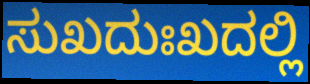
ಸುಖದುಃಖದಲ್ಲಿ